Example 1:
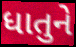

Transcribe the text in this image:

ધાતુને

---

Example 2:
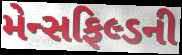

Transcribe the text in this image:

મેન્સફિલ્ડની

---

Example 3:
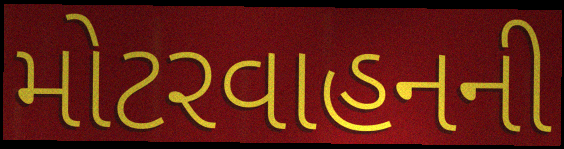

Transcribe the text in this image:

મોટરવાહનની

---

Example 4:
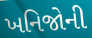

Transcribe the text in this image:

ખનિજોની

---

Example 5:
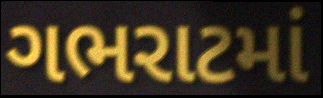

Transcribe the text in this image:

ગભરાટમાં